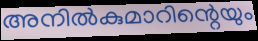
അനിൽകുമാറിന്റെയും